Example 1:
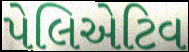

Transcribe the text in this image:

પેલિએટિવ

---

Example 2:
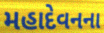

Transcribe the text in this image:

મહાદેવનના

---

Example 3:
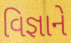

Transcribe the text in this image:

વિજ્ઞાને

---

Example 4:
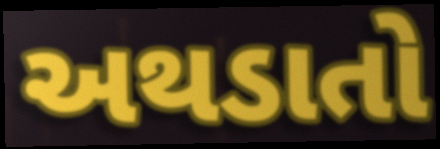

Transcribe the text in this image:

અથડાતો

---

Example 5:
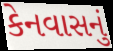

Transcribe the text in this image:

કેનવાસનું